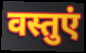
वस्तुएं